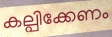
കല്പിക്കേണം